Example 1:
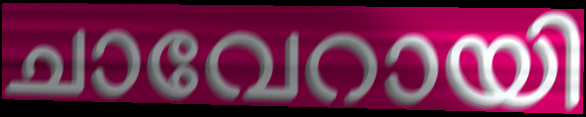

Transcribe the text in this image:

ചാവേറായി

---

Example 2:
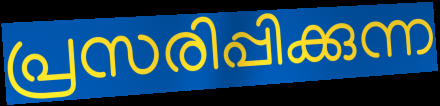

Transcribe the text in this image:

പ്രസരിപ്പിക്കുന്ന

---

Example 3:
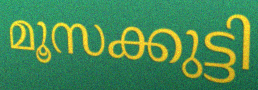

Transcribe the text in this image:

മൂസക്കുട്ടി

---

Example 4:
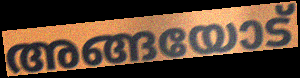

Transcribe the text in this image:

അങ്ങയോട്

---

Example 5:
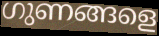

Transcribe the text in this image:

ഗുണങ്ങളെ